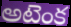
అటెంక